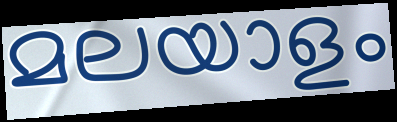
മലയാളം